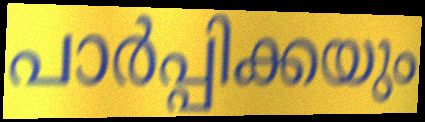
പാർപ്പിക്കയും